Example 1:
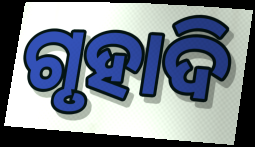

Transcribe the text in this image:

ଗୃହାଦି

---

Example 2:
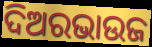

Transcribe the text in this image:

ଦିଅରଭାଉଜ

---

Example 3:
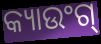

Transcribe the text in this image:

କ୍ୟାଉଂଗ୍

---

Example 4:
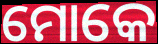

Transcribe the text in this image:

ମୋକେ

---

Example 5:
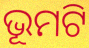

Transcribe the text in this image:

ଭୂମଟି